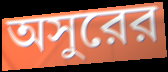
অসুরের